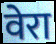
वेरा